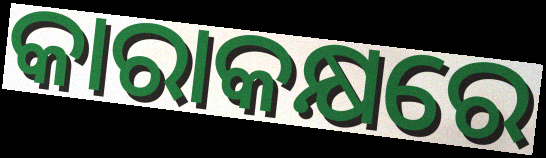
କାରାକକ୍ଷରେ